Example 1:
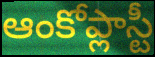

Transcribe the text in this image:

ఆంకోప్లాస్టీ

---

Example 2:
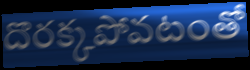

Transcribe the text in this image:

దొరక్కపోవటంతో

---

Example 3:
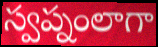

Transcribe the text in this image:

స్వప్నంలాగా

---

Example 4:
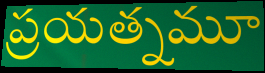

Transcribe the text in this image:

ప్రయత్నమూ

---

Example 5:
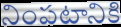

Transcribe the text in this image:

నింపటానికి